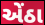
એંઠા